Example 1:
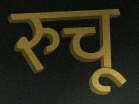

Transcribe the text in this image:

रुचू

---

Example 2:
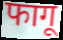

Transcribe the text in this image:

फागू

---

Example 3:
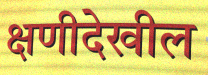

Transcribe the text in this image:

क्षणीदेखील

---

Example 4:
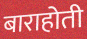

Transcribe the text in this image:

बाराहोती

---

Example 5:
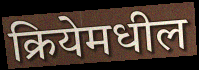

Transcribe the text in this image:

क्रियेमधील